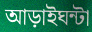
আড়াইঘন্টা